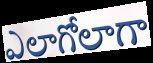
ఎలాగోలాగా